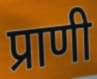
प्राणी